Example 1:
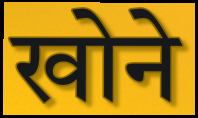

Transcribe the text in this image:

खोने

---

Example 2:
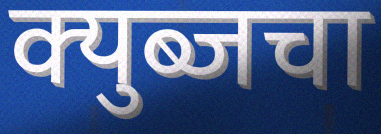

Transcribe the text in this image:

क्युब्जचा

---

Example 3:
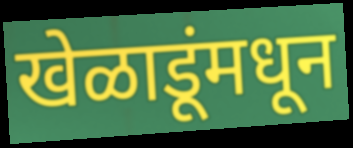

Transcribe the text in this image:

खेळाडूंमधून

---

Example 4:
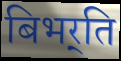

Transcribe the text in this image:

बिभर्ति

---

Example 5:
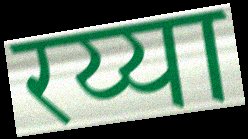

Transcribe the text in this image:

रय्या